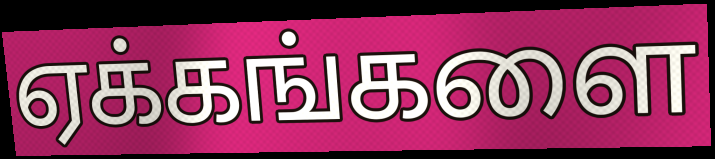
ஏக்கங்களை